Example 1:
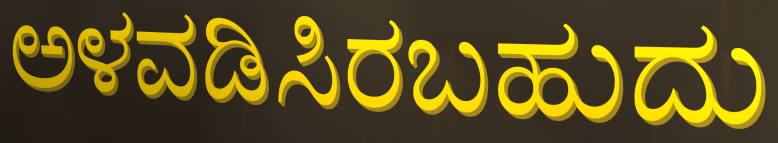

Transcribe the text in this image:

ಅಳವಡಿಸಿರಬಹುದು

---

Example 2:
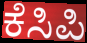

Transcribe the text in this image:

ಕೆಸಿಪಿ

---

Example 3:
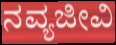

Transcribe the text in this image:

ನವ್ಯಜೀವಿ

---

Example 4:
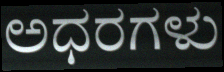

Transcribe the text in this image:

ಅಧರಗಳು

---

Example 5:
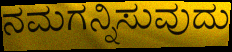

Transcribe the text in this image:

ನಮಗನ್ನಿಸುವುದು